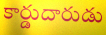
కార్డుదారుడు